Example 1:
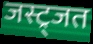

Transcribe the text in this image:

जस्ट्र्जत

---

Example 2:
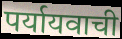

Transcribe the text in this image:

पर्यायवाची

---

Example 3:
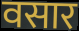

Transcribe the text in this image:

वसार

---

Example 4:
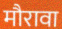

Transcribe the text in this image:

मौरावा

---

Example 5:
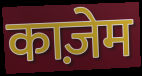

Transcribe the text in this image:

काज़ेम